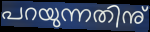
പറയുന്നതിനു്